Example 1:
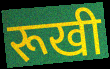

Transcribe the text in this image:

रूखी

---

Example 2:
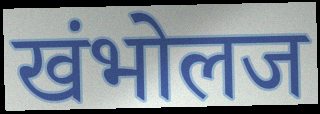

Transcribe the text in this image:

खंभोलज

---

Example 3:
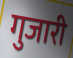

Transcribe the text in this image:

गुजारी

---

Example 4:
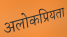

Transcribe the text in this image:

अलोकप्रियता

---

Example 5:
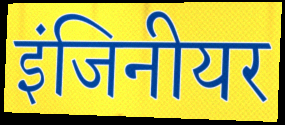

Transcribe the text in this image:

इंजिनीयर